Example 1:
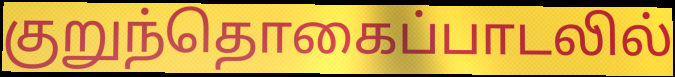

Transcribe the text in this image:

குறுந்தொகைப்பாடலில்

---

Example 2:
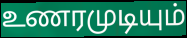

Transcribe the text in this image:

உணரமுடியும்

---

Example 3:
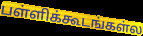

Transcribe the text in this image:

பள்ளிக்கூடங்கள்ல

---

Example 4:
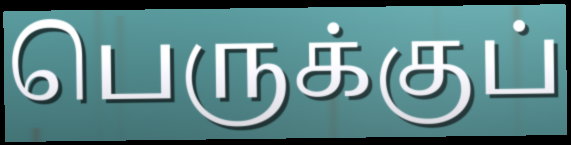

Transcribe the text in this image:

பெருக்குப்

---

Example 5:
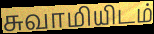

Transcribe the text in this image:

சுவாமியிடம்